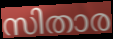
സിതാര